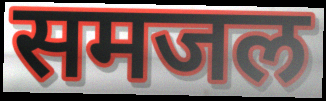
समजल